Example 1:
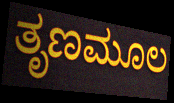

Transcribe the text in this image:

ತೃಣಮೂಲ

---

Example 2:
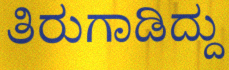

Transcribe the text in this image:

ತಿರುಗಾಡಿದ್ದು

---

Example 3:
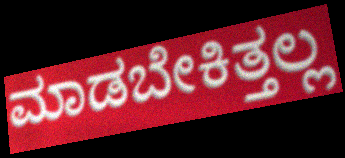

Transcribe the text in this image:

ಮಾಡಬೇಕಿತ್ತಲ್ಲ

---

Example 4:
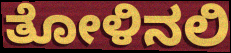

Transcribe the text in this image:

ತೋಳಿನಲಿ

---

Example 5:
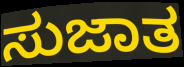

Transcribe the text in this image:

ಸುಜಾತ